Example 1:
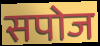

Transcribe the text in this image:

सपोज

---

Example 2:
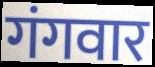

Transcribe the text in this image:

गंगवार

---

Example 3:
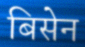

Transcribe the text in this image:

बिसेन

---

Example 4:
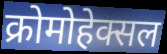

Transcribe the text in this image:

क्रोमोहेक्सल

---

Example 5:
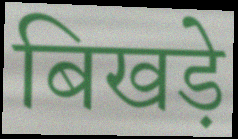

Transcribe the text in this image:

बिखड़े